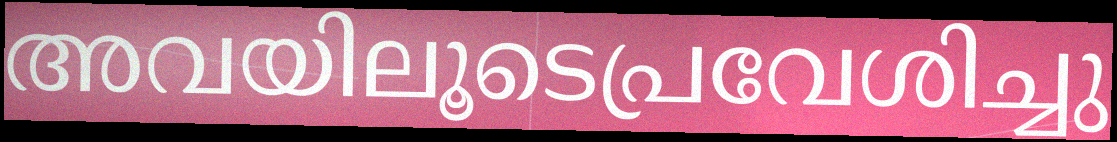
അവയിലൂടെപ്രവേശിച്ചു